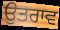
ਉਤਰਾਵ